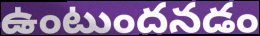
ఉంటుందనడం